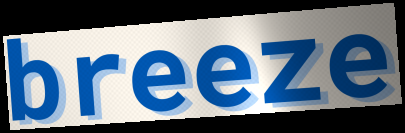
breeze